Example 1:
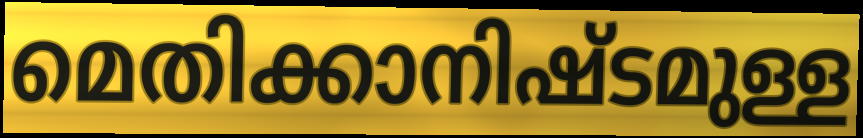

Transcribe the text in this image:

മെതിക്കാനിഷ്ടമുള്ള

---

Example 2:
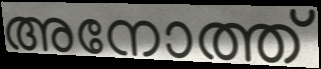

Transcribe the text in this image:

അനോത്ത്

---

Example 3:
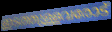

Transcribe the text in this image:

ഇടത്തുള്ളവരോട്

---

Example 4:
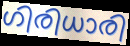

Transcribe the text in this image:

ഗിരിധാരി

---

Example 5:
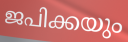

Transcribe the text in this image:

ജപിക്കയും